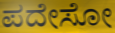
ಪದೇಸೋ